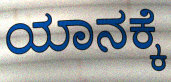
ಯಾನಕ್ಕೆ